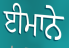
ਈਮਾਨੇ